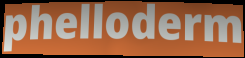
phelloderm